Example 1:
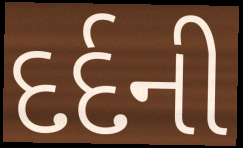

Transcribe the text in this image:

દર્દની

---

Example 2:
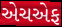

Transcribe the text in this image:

એચએફ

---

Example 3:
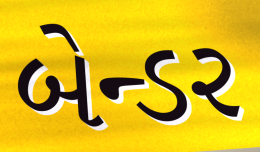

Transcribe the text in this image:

બેન્ડર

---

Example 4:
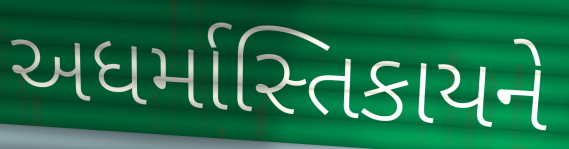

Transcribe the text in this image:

અધર્માસ્તિકાયને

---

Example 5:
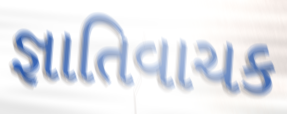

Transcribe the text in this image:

જ્ઞાતિવાચક